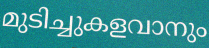
മുടിച്ചുകളവാനും